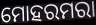
ମୋହରମରା